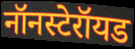
नॉनस्टेरॉयड